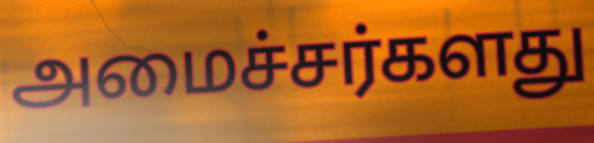
அமைச்சர்களது